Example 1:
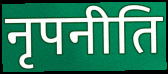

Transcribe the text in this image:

नृपनीति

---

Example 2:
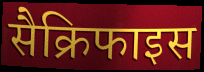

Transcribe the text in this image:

सैक्रिफाइस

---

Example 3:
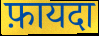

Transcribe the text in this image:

फ़ायदा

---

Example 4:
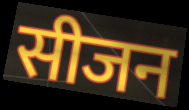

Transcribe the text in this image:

सीजन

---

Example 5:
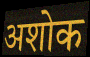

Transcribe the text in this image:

अशोक